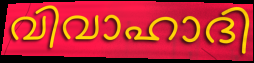
വിവാഹാദി